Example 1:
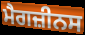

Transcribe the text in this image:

ਮੈਗਜ਼ੀਨਸ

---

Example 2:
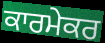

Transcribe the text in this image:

ਕਾਰਮੇਕਰ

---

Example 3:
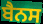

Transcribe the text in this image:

ਬੈਨਸ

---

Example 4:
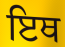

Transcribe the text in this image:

ਇਥ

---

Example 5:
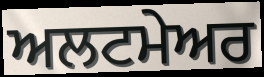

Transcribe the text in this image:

ਅਲਟਮੇਅਰ